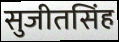
सुजीतसिंह